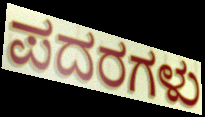
ಪದರಗಳು